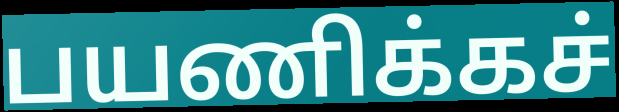
பயணிக்கச்